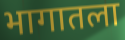
भागातला